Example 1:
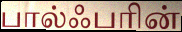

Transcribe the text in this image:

பால்ஃபரின்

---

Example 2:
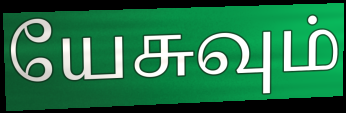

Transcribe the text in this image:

யேசுவும்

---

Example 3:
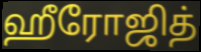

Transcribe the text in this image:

ஹீரோஜித்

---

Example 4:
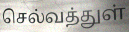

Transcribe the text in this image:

செல்வத்துள்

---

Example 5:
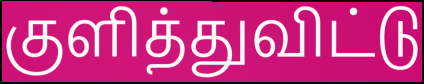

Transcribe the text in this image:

குளித்துவிட்டு